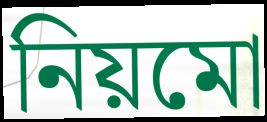
নিয়মো